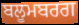
ਬਲੂਮਬਰਗ